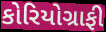
કોરિયોગ્રાફી